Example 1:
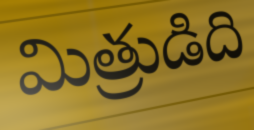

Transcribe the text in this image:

మిత్రుడిది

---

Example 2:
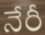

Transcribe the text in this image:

నేరీ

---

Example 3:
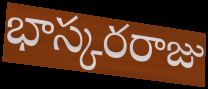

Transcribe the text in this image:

భాస్కరరాజు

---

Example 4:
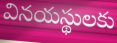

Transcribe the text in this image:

వినయస్థులకు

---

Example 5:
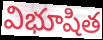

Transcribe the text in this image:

విభూషిత